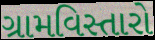
ગ્રામવિસ્તારો